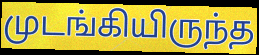
முடங்கியிருந்த